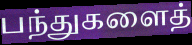
பந்துகளைத்